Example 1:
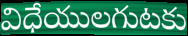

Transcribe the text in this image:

విధేయులగుటకు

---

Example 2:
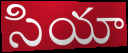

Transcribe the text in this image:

సియా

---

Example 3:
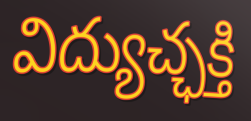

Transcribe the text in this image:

విద్యుచ్ఛక్తి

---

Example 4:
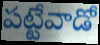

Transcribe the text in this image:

పట్టేవాడో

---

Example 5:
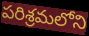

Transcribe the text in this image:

పరిశ్రమలోని